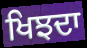
ਖਿਝਦਾ